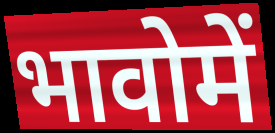
भावोमें